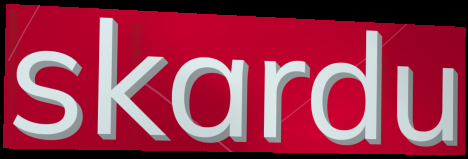
skardu